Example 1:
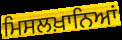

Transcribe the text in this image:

ਮਿਸਲਖ਼ਾਨਿਆਂ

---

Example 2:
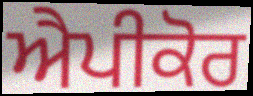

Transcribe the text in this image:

ਐਪੀਕੋਰ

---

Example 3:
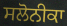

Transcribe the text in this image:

ਸਲੋਨੀਕਾ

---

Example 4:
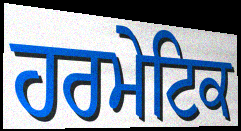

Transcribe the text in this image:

ਹਰਮੇਟਿਕ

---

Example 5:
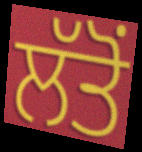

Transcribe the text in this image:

ਲੱਤੋਂ